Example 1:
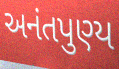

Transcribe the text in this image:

અનંતપુણ્ય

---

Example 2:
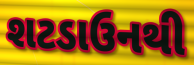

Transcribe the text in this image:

શટડાઉનથી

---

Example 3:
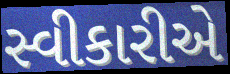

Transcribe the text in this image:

સ્વીકારીએ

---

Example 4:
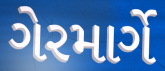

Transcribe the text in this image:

ગેરમાર્ગે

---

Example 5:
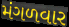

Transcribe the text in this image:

મંગળવાર